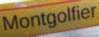
Montgolfier